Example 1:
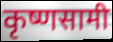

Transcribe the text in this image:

कृष्णसामी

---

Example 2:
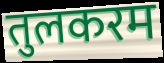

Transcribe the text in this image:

तुलकरम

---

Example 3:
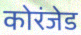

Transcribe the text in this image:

कोरंजेड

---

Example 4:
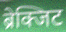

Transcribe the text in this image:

ब्रेक्जिट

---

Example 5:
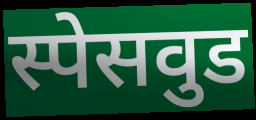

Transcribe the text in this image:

स्पेसवुड